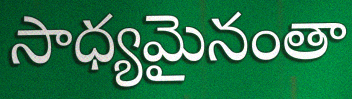
సాధ్యమైనంతా